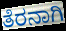
ತೆರನಾಗಿ